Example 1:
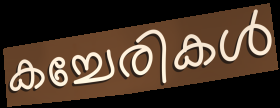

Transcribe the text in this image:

കച്ചേരികൾ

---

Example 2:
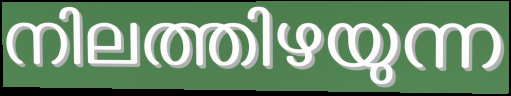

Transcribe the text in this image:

നിലത്തിഴയുന്ന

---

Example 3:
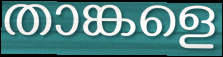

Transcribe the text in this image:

താങ്കളെ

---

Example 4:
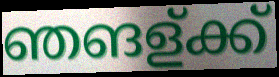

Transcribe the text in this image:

ഞങള്ക്ക്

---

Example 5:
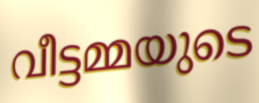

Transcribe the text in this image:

വീട്ടമ്മയുടെ